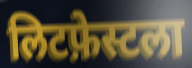
लिटफ़ेस्टला